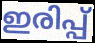
ഇരിപ്പ്